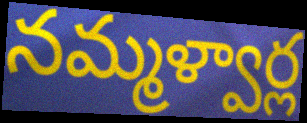
నమ్మళ్వార్ల